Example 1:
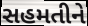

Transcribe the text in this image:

સહમતીને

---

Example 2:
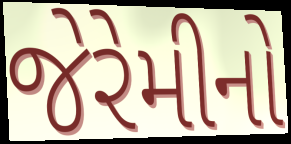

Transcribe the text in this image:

જેરેમીનો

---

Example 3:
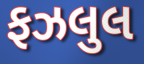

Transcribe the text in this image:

ફઝલુલ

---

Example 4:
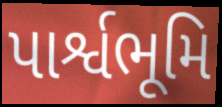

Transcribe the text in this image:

પાર્શ્વભૂમિ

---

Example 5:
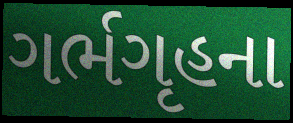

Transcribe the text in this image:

ગર્ભગૃહના